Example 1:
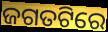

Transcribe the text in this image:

ଜଗତଟିରେ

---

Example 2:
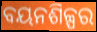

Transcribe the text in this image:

ବୟନଶିଳ୍ପର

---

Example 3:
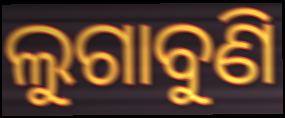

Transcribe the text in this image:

ଲୁଗାବୁଣି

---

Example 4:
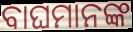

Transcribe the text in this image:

ବାଘମାନଙ୍କ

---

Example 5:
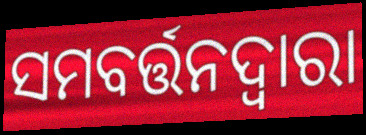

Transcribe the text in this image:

ସମବର୍ତ୍ତନଦ୍ୱାରା